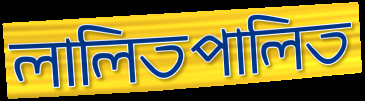
লালিতপালিত